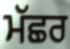
ਮੱਛਰ